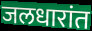
जलधारांत